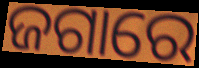
ଜଗାରେ